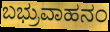
ಬಭ್ರುವಾಹನಂ